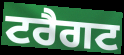
ਟਰੈਗਟ